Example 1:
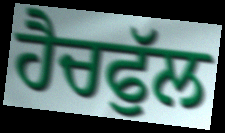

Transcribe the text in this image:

ਹੈਚਫੁੱਲ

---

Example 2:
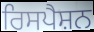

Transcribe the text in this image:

ਰਿਸਪੈਸ਼ਨ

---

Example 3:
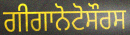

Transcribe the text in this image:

ਗੀਗਾਨੋਟੋਸੌਰਸ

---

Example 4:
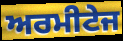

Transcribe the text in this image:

ਅਰਮੀਟੇਜ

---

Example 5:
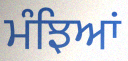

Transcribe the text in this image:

ਮੰਝਿਆਂ